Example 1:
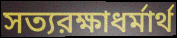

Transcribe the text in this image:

সত্যরক্ষাধর্মার্থ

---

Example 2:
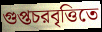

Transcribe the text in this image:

গুপ্তচরবৃত্তিতে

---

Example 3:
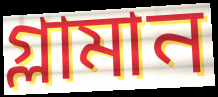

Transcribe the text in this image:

গ্লামান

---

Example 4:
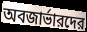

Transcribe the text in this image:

অবজার্ভারদের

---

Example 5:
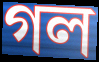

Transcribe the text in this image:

গল